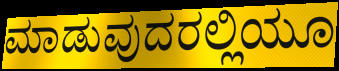
ಮಾಡುವುದರಲ್ಲಿಯೂ